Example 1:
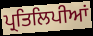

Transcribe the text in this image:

ਪ੍ਰਤਿਲਿਪੀਆਂ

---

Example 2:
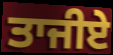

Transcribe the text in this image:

ਤਾਜੀਏ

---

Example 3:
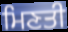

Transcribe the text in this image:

ਮਿਣਤੀ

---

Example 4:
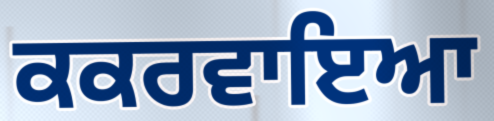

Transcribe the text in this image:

ਕਕਰਵਾਇਆ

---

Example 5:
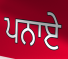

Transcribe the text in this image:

ਪਨਾਏ